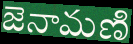
జెనామణి